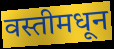
वस्तीमधून